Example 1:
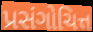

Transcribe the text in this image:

પ્રસંગોચિત્ત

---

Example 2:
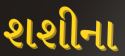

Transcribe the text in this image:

શશીના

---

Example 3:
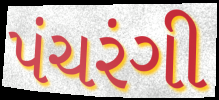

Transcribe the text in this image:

પંચરંગી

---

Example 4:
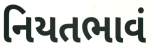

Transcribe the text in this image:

નિયતભાવં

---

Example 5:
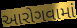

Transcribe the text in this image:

આરોગવામાં